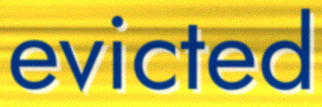
evicted